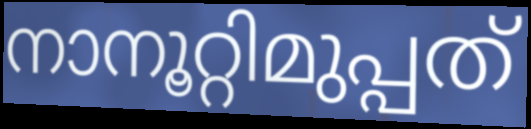
നാനൂറ്റിമുപ്പത്